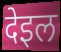
देइल